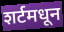
शर्टमधून